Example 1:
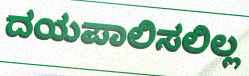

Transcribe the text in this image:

ದಯಪಾಲಿಸಲಿಲ್ಲ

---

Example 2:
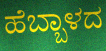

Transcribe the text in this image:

ಹೆಬ್ಬಾಳದ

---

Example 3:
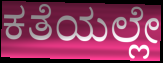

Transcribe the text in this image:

ಕತೆಯಲ್ಲೇ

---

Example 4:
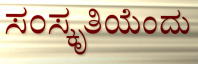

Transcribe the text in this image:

ಸಂಸ್ಕೃತಿಯೆಂದು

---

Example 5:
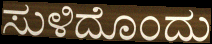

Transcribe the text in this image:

ಸುಳಿದೊಂದು